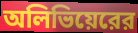
অলিভিয়েরের